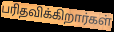
பரிதவிக்கிறார்கள்